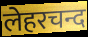
लेहरचन्द